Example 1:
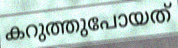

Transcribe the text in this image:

കറുത്തുപോയത്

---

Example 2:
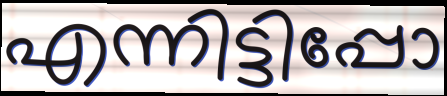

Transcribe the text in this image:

എന്നിട്ടിപ്പോ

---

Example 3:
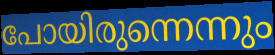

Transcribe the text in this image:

പോയിരുന്നെന്നും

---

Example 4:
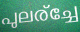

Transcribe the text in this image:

പുലര്ച്ചേ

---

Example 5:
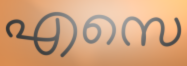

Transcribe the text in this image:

എസെ